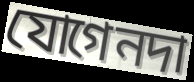
যোগেনদা